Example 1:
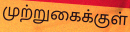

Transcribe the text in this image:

முற்றுகைக்குள்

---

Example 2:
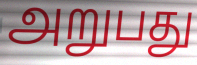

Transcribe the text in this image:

அறுபது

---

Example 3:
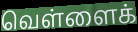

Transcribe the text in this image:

வெள்ளைக்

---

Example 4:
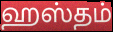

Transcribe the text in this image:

ஹஸ்தம்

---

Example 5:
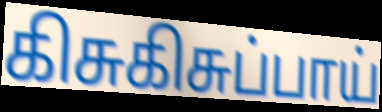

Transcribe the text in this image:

கிசுகிசுப்பாய்